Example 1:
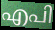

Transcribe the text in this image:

എപി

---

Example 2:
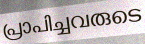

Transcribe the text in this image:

പ്രാപിച്ചവരുടെ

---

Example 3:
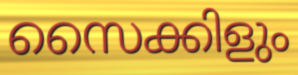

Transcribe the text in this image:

സൈക്കിളും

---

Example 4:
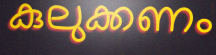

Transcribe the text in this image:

കുലുക്കണം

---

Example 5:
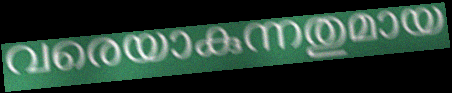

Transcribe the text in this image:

വരെയാകുന്നതുമായ